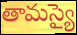
తామస్యై